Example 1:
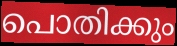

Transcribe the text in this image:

പൊതിക്കും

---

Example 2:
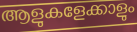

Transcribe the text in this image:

ആളുകളേക്കാളും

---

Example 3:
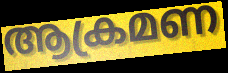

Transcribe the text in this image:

ആക്രമണ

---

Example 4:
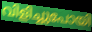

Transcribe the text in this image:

വിളിച്ചുപോയി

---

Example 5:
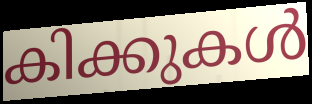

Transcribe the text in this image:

കിക്കുകൾ